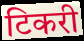
टिकरी